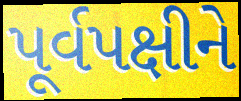
પૂર્વપક્ષીને